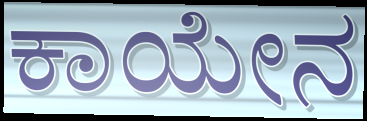
ಕಾಯೇನ